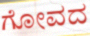
ಗೋವದ